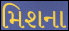
મિશના